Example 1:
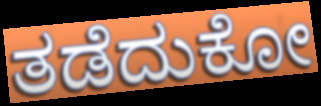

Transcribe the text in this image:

ತಡೆದುಕೋ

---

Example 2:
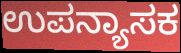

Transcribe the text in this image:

ಉಪನ್ಯಾಸಕ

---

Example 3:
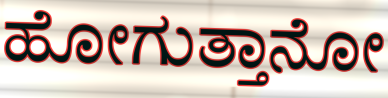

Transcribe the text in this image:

ಹೋಗುತ್ತಾನೋ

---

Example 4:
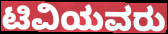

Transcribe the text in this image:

ಟಿವಿಯವರು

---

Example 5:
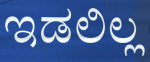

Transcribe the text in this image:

ಇಡಲಿಲ್ಲ